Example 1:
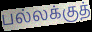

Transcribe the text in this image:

பல்லக்குத்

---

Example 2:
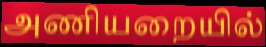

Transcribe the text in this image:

அணியறையில்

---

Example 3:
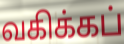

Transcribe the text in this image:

வகிக்கப்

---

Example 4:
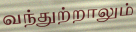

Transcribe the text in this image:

வந்துற்றாலும்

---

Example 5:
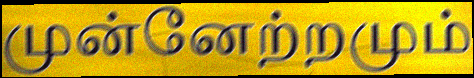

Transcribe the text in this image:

முன்னேற்றமும்